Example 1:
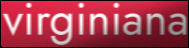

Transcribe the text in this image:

virginiana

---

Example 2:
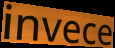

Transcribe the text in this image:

invece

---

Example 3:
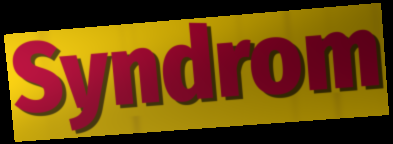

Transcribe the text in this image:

Syndrom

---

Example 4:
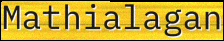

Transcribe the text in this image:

Mathialagan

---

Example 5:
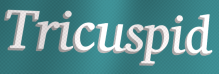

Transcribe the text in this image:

Tricuspid